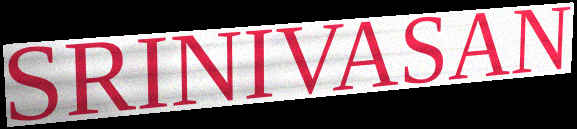
SRINIVASAN